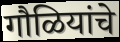
गौळियांचे